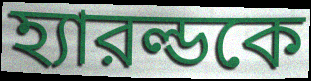
হ্যারল্ডকে